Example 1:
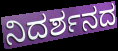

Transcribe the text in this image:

ನಿದರ್ಶನದ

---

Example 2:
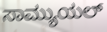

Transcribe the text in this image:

ಸಾಮ್ಯುಯಲ್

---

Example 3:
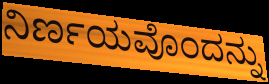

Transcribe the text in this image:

ನಿರ್ಣಯವೊಂದನ್ನು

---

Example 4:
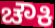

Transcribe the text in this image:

ಚೌಕಿ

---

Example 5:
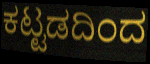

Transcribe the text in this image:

ಕಟ್ಟಡದಿಂದ